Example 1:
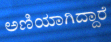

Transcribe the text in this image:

ಅಣಿಯಾಗಿದ್ದಾರೆ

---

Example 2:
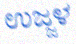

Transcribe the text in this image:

ಉಜ್ಜಳ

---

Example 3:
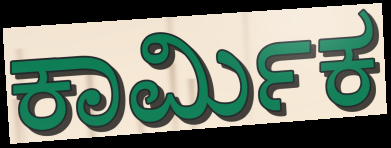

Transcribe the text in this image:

ಕಾರ್ಮಿಕ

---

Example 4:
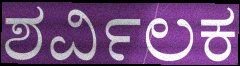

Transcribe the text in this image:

ಶರ್ವಿಲಕ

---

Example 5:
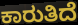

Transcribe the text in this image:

ಕಾರುತಿದೆ